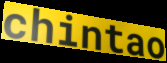
chintao